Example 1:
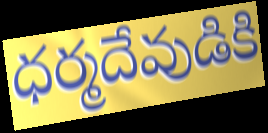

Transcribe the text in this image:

ధర్మదేవుడికి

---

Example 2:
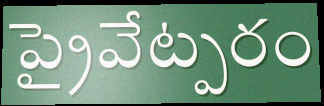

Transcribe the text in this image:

ప్రైవేట్పరం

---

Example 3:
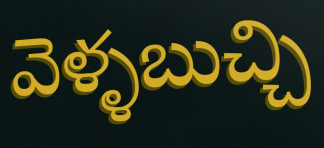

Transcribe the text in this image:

వెళ్ళబుచ్చి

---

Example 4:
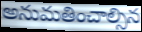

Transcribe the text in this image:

అనుమతించాల్సిన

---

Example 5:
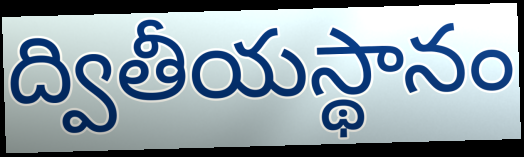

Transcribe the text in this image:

ద్వితీయస్థానం